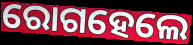
ରୋଗହେଲେ